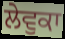
ਲੇਵੁਕਾ